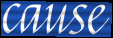
cause